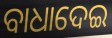
ବାଧାଦେଇ